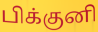
பிக்குனி